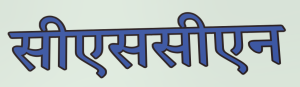
सीएससीएन